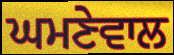
ਘਮਣੇਵਾਲ